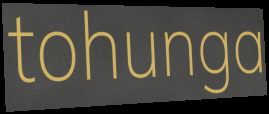
tohunga